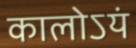
कालोऽयं